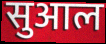
सुआल